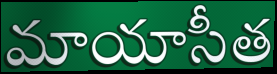
మాయాసీత